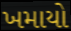
ખમાયો